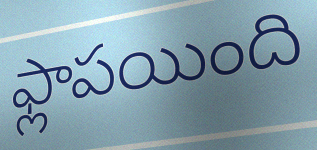
ఫ్లాపయింది